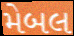
મેબલ